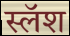
स्लॅश